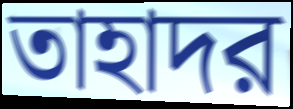
তাহাদর